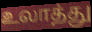
உலாத்து